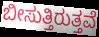
ಬೀಸುತ್ತಿರುತ್ತವೆ